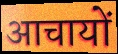
आचायों